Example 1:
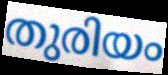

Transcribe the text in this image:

തുരിയം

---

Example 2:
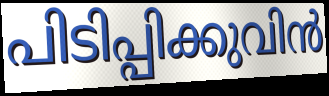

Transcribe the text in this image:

പിടിപ്പിക്കുവിൻ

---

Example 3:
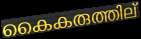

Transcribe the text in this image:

കൈകരുത്തില്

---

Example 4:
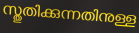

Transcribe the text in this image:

സ്തുതിക്കുന്നതിനുള്ള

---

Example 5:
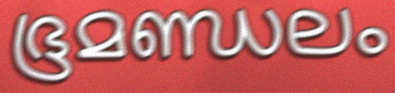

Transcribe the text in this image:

ഭൂമണ്ഡലം